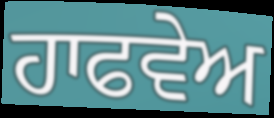
ਹਾਫਵੇਅ